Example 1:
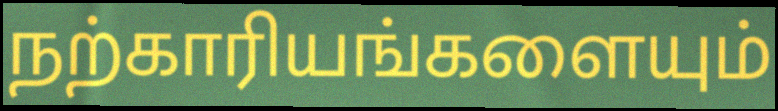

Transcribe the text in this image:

நற்காரியங்களையும்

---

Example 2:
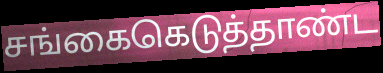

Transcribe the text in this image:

சங்கைகெடுத்தாண்ட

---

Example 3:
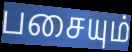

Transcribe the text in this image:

பசையும்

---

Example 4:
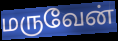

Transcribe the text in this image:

மருவேன்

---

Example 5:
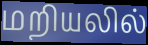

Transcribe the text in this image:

மறியலில்